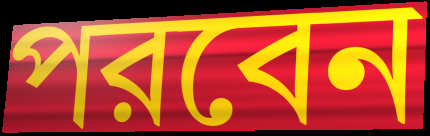
পরবেন